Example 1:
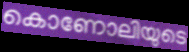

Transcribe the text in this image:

കൊണോലിയുടെ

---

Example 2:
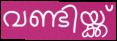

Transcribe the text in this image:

വണ്ടിയ്ക്ക്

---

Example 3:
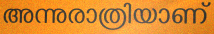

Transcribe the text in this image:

അന്നുരാത്രിയാണ്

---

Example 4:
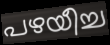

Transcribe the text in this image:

പഴയീച്ച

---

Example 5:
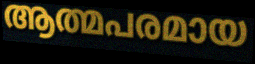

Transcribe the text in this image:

ആത്മപരമായ